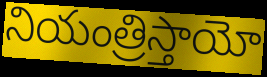
నియంత్రిస్తాయో